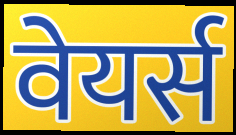
वेयर्स